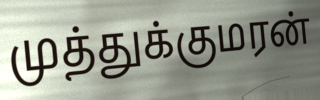
முத்துக்குமரன்